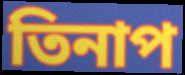
তিনাপ